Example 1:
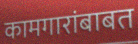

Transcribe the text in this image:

कामगारांबाबत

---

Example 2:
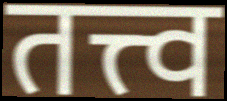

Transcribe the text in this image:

तत्त्व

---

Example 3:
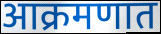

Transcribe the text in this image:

आक्रमणात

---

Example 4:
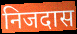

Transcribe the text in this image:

निजदास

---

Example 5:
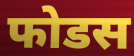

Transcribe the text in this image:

फोडस